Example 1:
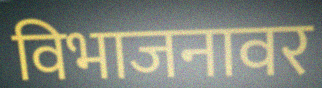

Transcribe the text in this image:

विभाजनावर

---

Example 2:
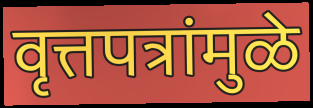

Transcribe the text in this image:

वृत्तपत्रांमुळे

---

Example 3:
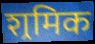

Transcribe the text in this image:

श्रमिक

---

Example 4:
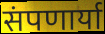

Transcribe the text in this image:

संपणार्या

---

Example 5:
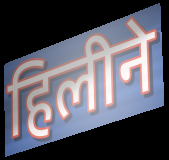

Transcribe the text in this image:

हिलीने